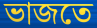
ভাজতে